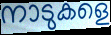
നാടുകളെ